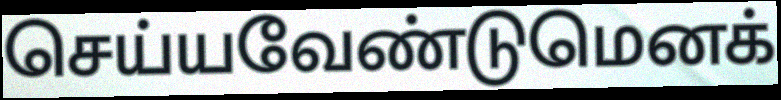
செய்யவேண்டுமெனக்